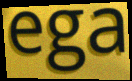
ega